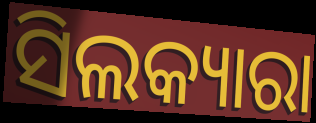
ସିଲକ୍ୟାରା